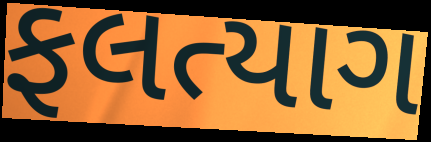
ફલત્યાગ